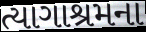
ત્યાગાશ્રમના